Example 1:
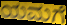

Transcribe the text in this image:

ಯಮಗೆ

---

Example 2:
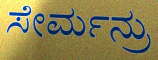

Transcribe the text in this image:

ಸೇರ್ಮನ್ರು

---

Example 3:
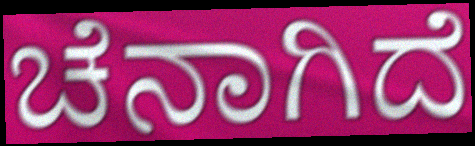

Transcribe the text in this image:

ಚೆನಾಗಿದೆ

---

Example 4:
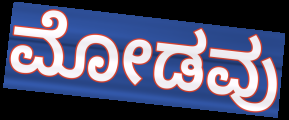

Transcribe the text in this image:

ಮೋಡವು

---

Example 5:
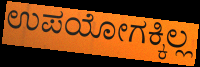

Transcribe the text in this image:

ಉಪಯೋಗಕ್ಕಿಲ್ಲ